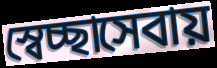
স্বেচ্ছাসেবায়